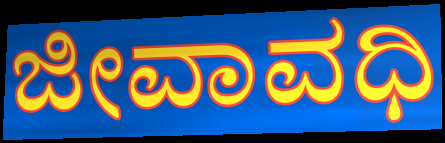
ಜೀವಾವಧಿ